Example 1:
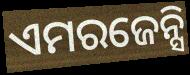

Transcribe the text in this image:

ଏମରଜେନ୍ସି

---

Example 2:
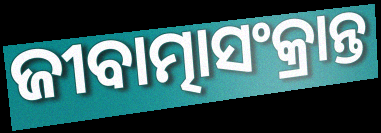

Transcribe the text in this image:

ଜୀବାତ୍ମାସଂକ୍ରାନ୍ତ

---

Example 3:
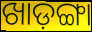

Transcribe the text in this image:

ଖାଡ଼ଙ୍ଗା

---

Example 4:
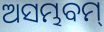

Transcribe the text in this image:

ଅସମ୍ଭବମ୍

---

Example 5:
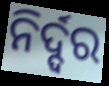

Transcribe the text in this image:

ନିର୍ଦ୍ଦର